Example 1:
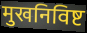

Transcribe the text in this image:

मुखनिविष्ट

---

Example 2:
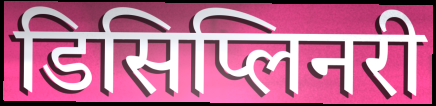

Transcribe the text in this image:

डिसिप्लिनरी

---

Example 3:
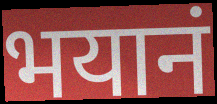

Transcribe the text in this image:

भयानं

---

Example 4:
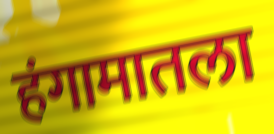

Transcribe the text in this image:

हंगामातला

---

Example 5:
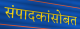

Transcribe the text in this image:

संपादकांसोबत